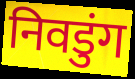
निवडुंग